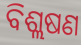
ବିଶ୍ଲଷଣ